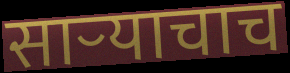
साऱ्याचाच